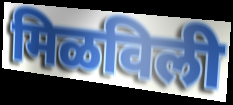
मिळविली